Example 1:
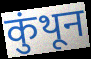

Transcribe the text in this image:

कुंथून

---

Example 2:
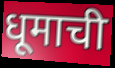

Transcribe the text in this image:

धूमाची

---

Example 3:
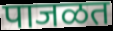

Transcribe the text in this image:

पाजळत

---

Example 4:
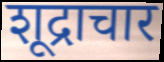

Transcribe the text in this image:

शूद्राचार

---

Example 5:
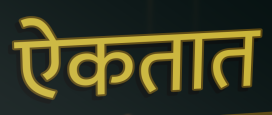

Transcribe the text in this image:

ऐकतात